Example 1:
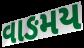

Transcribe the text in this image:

વાઙમય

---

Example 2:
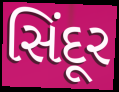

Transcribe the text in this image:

સિંદૂર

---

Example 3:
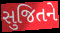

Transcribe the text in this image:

સુજિતને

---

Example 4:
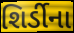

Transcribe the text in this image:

શિર્ડીના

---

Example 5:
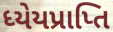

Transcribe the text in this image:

ધ્યેયપ્રાપ્તિ